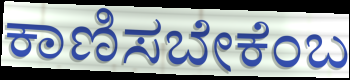
ಕಾಣಿಸಬೇಕೆಂಬ